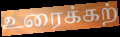
உரைக்கற்